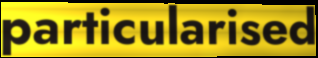
particularised